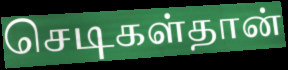
செடிகள்தான்